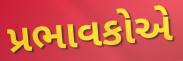
પ્રભાવકોએ